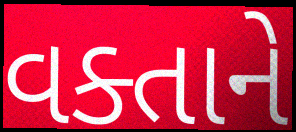
વક્તાને